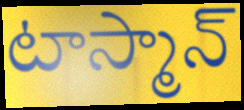
టాస్మాన్